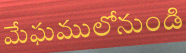
మేఘములోనుండి